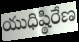
యుధిష్ఠిరేణ